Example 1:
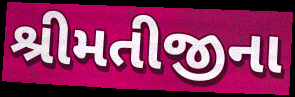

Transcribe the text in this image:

શ્રીમતીજીના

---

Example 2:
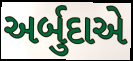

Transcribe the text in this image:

અર્બુદાએ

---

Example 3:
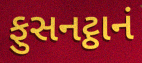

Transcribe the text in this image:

ફુસનટ્ઠાનં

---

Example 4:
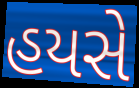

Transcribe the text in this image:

હયસે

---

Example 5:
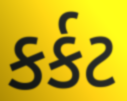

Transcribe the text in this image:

કર્કટ